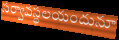
సర్వావస్థలయందునూ